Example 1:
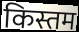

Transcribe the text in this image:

किस्तम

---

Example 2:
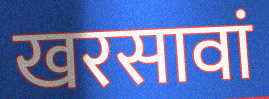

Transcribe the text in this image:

खरसावां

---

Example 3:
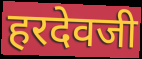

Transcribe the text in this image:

हरदेवजी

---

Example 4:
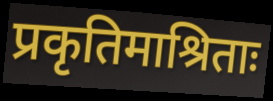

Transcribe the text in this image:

प्रकृतिमाश्रिताः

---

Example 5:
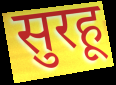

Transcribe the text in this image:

सुरहू